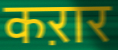
कऱार